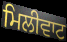
ਮਿਲੀਵਾਟ